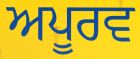
ਅਪੂਰਵ